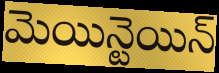
మెయిన్టెయిన్